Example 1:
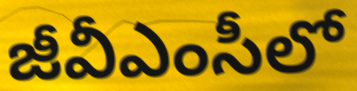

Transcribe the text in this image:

జీవీఎంసీలో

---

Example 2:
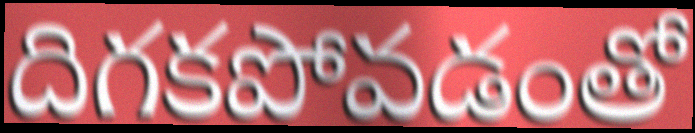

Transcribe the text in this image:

దిగకపోవడంతో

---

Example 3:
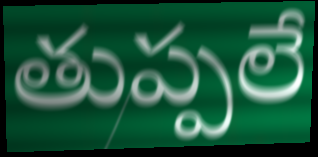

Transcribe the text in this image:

తుప్పలే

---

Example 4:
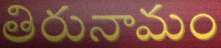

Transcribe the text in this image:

తిరునామం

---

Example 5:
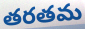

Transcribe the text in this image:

తరతమ